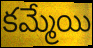
కమ్మేయి